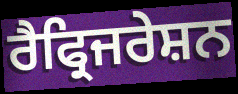
ਰੈਫ੍ਰਿਜਰੇਸ਼ਨ